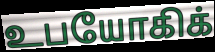
உபயோகிக்